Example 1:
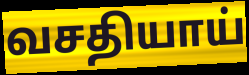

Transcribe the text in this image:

வசதியாய்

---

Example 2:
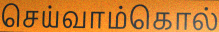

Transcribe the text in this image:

செய்வாம்கொல்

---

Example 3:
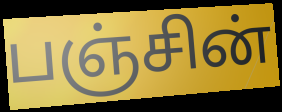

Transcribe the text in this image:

பஞ்சின்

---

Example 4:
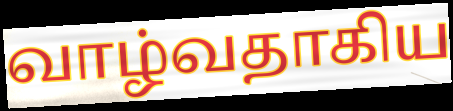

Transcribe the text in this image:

வாழ்வதாகிய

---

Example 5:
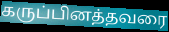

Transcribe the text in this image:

கருப்பினத்தவரை